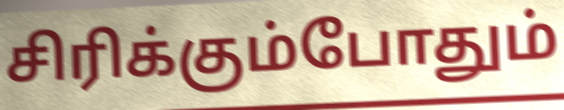
சிரிக்கும்போதும்